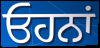
ਓਹਨਾਂ